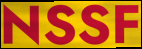
NSSF